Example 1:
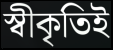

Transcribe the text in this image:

স্বীকৃতিই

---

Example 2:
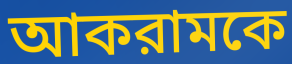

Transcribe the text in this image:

আকরামকে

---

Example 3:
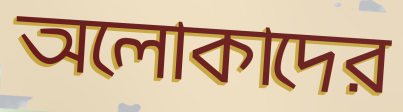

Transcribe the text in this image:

অলোকাদের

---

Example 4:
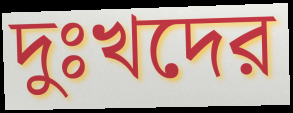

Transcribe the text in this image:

দুঃখদের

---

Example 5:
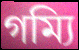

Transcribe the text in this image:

গম্যি